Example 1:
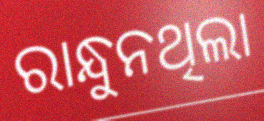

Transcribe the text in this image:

ରାନ୍ଧୁନଥିଲା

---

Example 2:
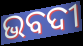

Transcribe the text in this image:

ଭବଦୀ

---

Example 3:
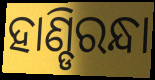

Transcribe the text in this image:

ହାଣ୍ଡିରନ୍ଧା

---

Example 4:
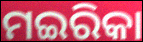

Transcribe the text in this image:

ମଇରିକା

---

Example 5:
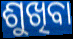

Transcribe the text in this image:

ଶୁଖିବା